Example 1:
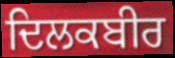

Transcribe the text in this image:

ਦਿਲਕਬੀਰ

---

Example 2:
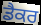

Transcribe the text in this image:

ਡੈਕਰ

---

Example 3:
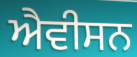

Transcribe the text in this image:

ਐਵੀਸਨ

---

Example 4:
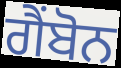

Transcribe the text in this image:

ਗੈਂਬੋਨ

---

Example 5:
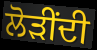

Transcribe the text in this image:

ਲੋੜੀਂਦੀ